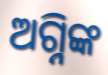
ଅଗ୍ନିଙ୍କ